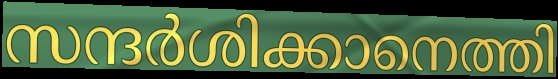
സന്ദർശിക്കാനെത്തി